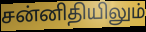
சன்னிதியிலும்